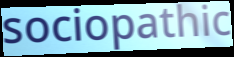
sociopathic